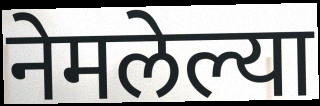
नेमलेल्या